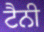
ਟੈਨੀ